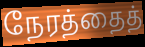
நேரத்தைத்